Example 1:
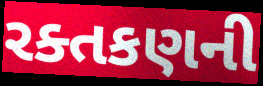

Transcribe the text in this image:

રક્તકણની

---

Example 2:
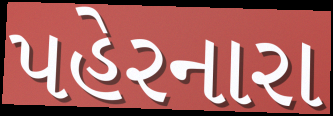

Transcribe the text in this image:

પહેરનારા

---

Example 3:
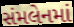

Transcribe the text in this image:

સંમલેનમાં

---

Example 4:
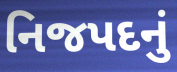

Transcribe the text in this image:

નિજપદનું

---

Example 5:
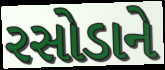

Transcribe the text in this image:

રસોડાને